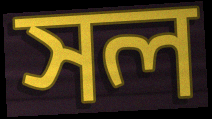
সল